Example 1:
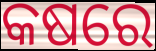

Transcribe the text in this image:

କଷରେ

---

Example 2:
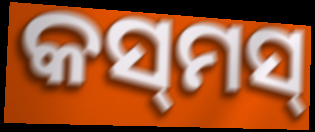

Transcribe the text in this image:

କସ୍‌ମସ୍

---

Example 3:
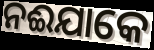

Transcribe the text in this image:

ନଈଯାକେ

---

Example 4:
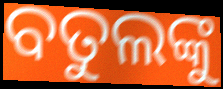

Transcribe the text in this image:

ବତୁଲଙ୍କୁ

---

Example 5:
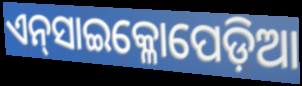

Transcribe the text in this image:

ଏନ୍‌ସାଇକ୍ଳୋପେଡ଼ିଆ